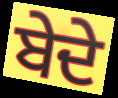
ਬੇਦੇ